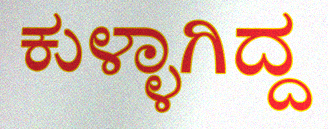
ಕುಳ್ಳಾಗಿದ್ದ